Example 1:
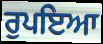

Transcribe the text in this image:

ਰੁਪਇਆ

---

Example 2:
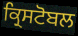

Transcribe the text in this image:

ਕ੍ਰਿਸਟੋਬਲ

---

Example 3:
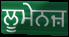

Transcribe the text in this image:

ਲੂਮੇਨਜ਼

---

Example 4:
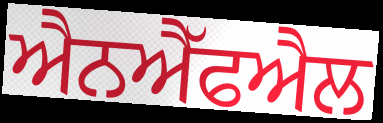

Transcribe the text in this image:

ਐਨਐੱਫਐਲ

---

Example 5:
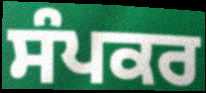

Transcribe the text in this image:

ਸੰਪਕਰ